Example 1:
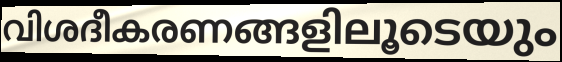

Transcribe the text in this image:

വിശദീകരണങ്ങളിലൂടെയും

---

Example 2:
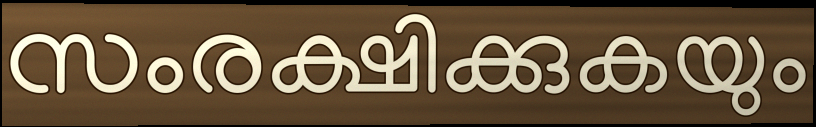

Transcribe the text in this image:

സംരക്ഷിക്കുകയും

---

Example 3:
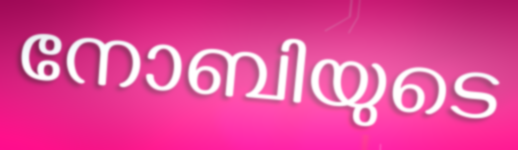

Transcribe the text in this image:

നോബിയുടെ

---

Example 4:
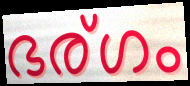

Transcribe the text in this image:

ഭര്ഗം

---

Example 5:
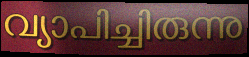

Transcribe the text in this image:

വ്യാപിച്ചിരുന്നു